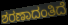
ಶರಣಾದಂತಿದೆ